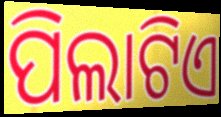
ପିଲାଟିଏ